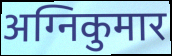
अग्निकुमार